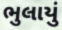
ભુલાયું